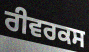
ਰੀਵਰਕਸ